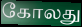
கோலது